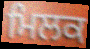
ਮਿਲਕ